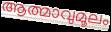
ആത്മാവുമൂലം